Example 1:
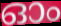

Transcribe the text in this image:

ഓം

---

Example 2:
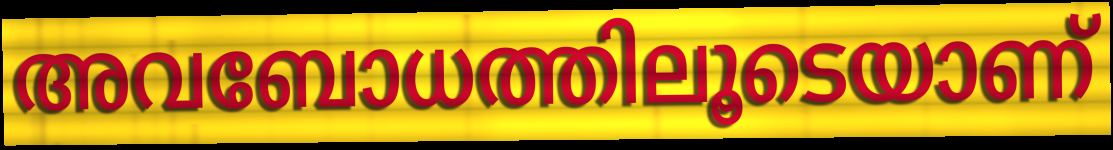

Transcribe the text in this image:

അവബോധത്തിലൂടെയാണ്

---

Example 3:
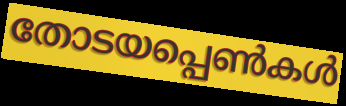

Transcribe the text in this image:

തോടയപ്പെൺകൾ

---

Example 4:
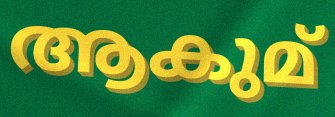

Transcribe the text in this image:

ആകുമ്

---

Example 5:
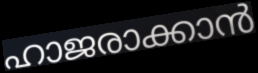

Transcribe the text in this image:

ഹാജരാക്കാൻ